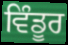
ਵਿੰਡੂਰ